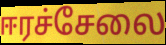
ஈரச்சேலை